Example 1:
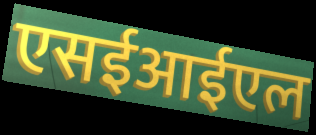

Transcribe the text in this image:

एसईआईएल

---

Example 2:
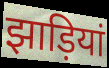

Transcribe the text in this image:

झाड़ियां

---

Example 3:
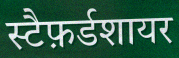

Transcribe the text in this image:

स्टैफ़र्डशायर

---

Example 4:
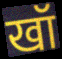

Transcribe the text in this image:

खॉ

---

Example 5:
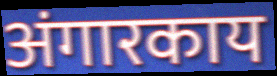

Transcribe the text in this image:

अंगारकाय